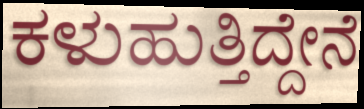
ಕಳುಹುತ್ತಿದ್ದೇನೆ